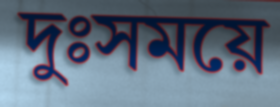
দুঃসময়ে